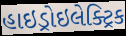
હાઇડ્રોઇલેક્ટ્રિક